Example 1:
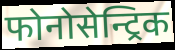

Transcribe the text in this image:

फोनोसेन्ट्रिक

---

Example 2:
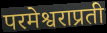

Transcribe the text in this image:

परमेश्वराप्रती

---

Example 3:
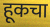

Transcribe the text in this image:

हूकचा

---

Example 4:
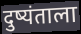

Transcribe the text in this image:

दुष्यंताला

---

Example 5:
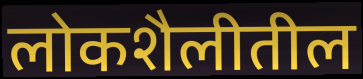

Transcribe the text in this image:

लोकशैलीतील